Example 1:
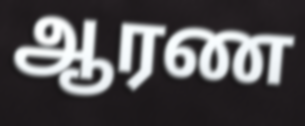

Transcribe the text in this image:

ஆரண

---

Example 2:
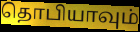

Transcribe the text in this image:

தொபியாவும்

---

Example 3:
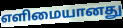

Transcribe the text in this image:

எளிமையானது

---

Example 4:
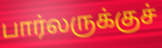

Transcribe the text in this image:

பார்லருக்குச்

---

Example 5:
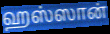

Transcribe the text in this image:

ஹஸ்ஸான்